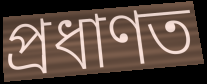
প্রধাণত